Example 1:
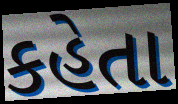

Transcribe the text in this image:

કહેતા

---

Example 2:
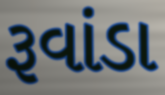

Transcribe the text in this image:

રૂવાંડા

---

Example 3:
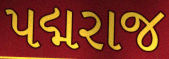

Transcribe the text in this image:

પદ્મરાજ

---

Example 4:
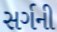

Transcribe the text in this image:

સર્ગની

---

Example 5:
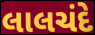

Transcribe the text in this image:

લાલચંદે